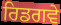
ਰਿਡਗਵੇ